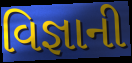
વિજ્ઞાની